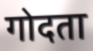
गोदता